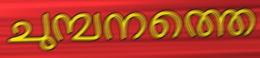
ചുമ്പനത്തെ